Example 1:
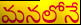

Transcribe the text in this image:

మనలోనే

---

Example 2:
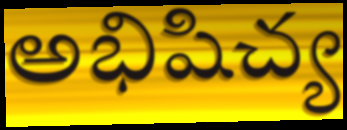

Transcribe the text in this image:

అభిషిచ్య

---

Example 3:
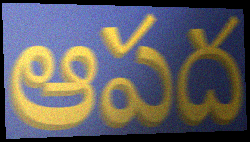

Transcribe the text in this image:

ఆపద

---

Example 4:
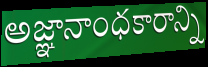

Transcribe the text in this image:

అజ్ఞానాంధకారాన్ని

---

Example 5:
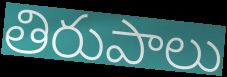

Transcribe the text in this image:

తిరుపాలు